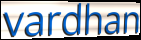
vardhan